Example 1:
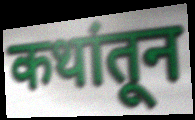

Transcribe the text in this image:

कथांतून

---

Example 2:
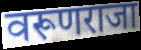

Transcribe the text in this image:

वरूणराजा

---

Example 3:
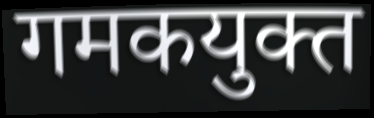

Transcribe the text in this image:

गमकयुक्त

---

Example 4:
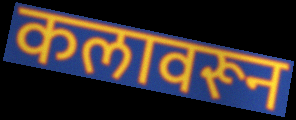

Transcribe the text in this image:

कलावरून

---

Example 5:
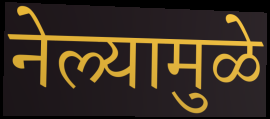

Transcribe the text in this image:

नेल्यामुळे